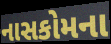
નાસકોમના